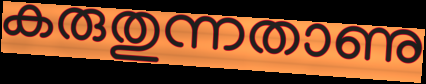
കരുതുന്നതാണു